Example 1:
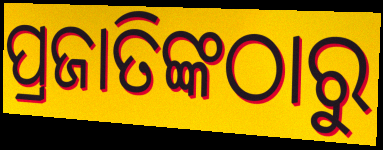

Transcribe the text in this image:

ପ୍ରଜାତିଙ୍କଠାରୁ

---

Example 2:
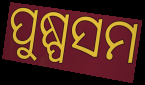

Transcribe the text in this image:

ପୁଷ୍ପସମ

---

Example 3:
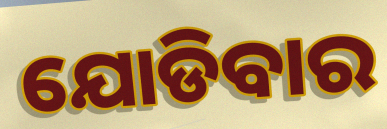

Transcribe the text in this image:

ଯୋଡିବାର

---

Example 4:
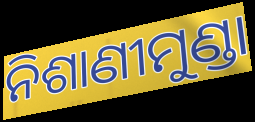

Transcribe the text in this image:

ନିଶାଣୀମୁଣ୍ଡା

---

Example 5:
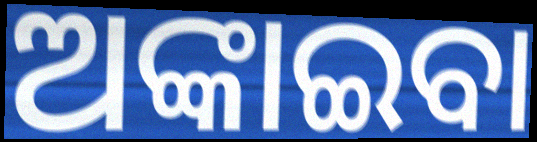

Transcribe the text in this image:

ଅଙ୍କାଇବା